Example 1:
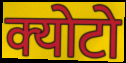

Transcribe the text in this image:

क्‍योटो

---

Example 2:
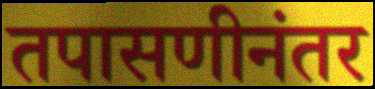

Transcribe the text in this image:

तपासणीनंतर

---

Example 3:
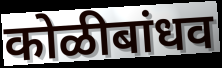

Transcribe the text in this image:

कोळीबांधव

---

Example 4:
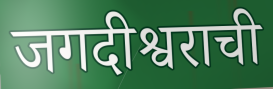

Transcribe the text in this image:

जगदीश्वराची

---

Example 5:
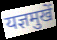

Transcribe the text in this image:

यज्ञमुखें